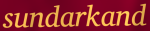
sundarkand